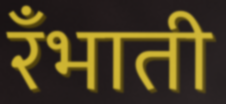
रँभाती